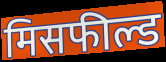
मिसफील्ड